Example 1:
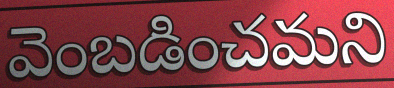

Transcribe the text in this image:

వెంబడించమని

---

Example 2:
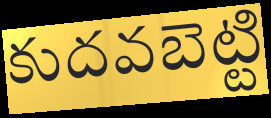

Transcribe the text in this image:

కుదవబెట్టి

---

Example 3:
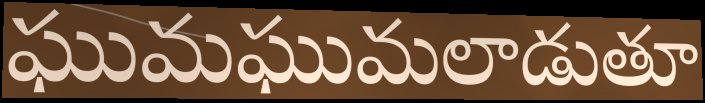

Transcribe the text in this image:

ఘుమఘుమలాడుతూ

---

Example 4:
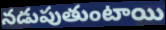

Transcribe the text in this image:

నడుపుతుంటాయి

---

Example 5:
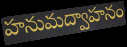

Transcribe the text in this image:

హనుమద్వాహనం